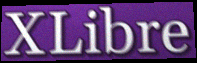
XLibre